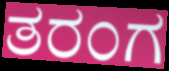
ತರಂಗ